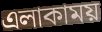
এলাকাময়